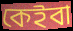
কেইবা